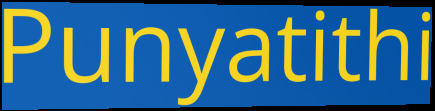
Punyatithi